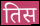
तिस